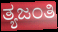
ತ್ಯಜಂತಿ